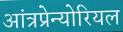
आंत्रप्रेन्योरियल